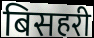
बिसहरी